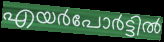
എയർപോർട്ടിൽ